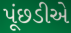
પૂંછડીએ